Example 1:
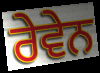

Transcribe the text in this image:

ਰੇਵੇਨ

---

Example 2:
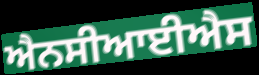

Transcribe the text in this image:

ਐਨਸੀਆਈਐਸ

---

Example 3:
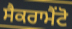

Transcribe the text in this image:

ਸੈਕਰਾਮੈਂਟੋ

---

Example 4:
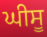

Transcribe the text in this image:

ਘੀਸੂ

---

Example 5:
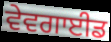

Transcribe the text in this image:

ਵੇਵਗਾਈਡ